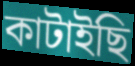
কাটাইছি